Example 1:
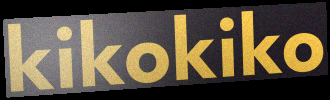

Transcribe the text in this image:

kikokiko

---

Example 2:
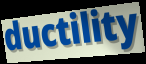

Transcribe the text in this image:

ductility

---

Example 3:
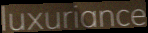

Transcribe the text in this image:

luxuriance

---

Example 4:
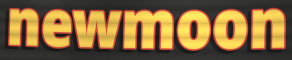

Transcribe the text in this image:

newmoon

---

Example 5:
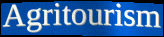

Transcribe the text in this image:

Agritourism